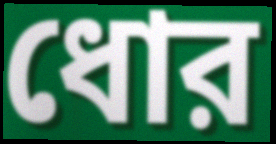
ধোর